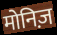
मोनिज़